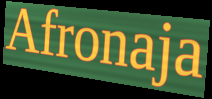
Afronaja